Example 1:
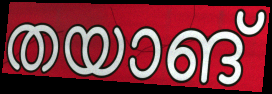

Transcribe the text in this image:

തയാങ്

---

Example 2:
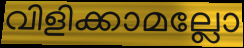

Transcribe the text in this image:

വിളിക്കാമല്ലോ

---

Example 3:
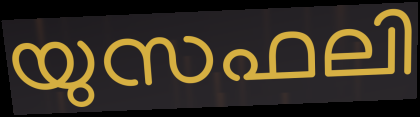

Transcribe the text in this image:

യുസഫലി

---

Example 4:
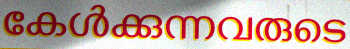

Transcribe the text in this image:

കേൾക്കുന്നവരുടെ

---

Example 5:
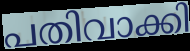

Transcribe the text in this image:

പതിവാക്കി